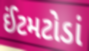
ઈંટમટોડાં